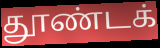
தூண்டக்